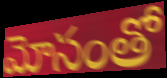
మోసంతో